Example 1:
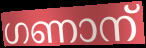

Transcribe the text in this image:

ഗണാന്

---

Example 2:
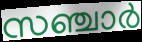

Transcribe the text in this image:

സഞ്ചാർ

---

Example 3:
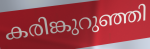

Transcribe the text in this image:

കരിങ്കുറുഞ്ഞി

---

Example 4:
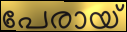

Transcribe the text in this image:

പേരായ്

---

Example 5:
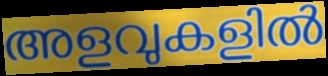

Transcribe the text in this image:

അളവുകളിൽ